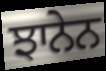
ਝਾਨੇਨ